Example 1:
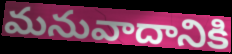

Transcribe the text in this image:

మనువాదానికి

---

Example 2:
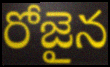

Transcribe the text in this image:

రోజైన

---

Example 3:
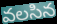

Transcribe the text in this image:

వలసిన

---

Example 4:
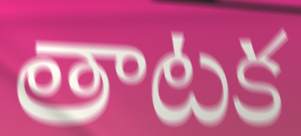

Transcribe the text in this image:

తాటక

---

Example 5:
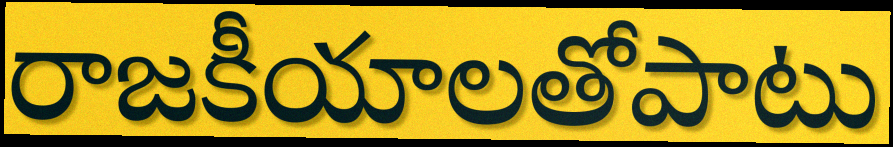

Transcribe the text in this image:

రాజకీయాలతోపాటు